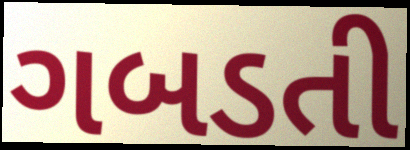
ગબડતી